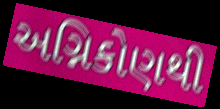
અગ્નિકોણથી